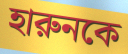
হারুনকে